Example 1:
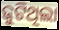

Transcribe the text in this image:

ଜୁଟିଥିଲା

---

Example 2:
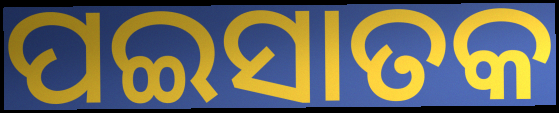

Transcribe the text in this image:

ପଇସାତକ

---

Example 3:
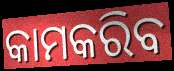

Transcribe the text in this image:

କାମକରିବ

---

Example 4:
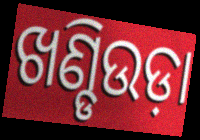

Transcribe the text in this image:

ଖଣ୍ଡିଉଡ଼ା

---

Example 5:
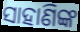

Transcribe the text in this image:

ସାହାଣିଙ୍କ